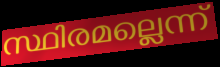
സ്ഥിരമല്ലെന്ന്